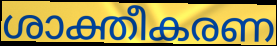
ശാക്തീകരണ